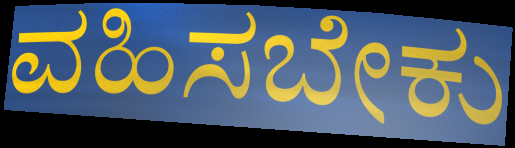
ವಹಿಸಬೇಕು